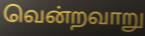
வென்றவாறு